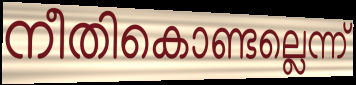
നീതികൊണ്ടല്ലെന്ന്